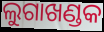
ଲୁଗାଖଣ୍ଡକ